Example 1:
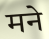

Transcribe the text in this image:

मने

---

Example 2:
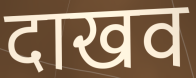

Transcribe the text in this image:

दाखव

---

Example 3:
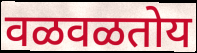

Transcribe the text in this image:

वळवळतोय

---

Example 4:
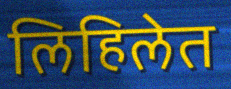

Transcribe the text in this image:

लिहिलेत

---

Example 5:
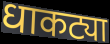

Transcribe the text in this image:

धाकट्या